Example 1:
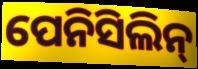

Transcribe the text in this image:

ପେନିସିଲିନ୍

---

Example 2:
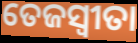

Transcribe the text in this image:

ତେଜସ୍ଵୀତା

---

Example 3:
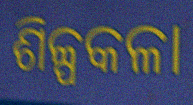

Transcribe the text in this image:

ଶିଳ୍ପକଳା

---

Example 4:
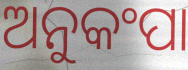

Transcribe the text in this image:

ଅନୁକଂପା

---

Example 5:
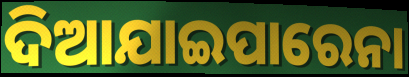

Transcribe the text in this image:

ଦିଆଯାଇପାରେନା